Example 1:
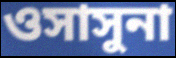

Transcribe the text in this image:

ওসাসুনা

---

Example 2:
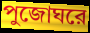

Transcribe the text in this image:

পুজোঘরে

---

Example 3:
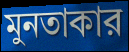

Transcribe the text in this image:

মুনতাকার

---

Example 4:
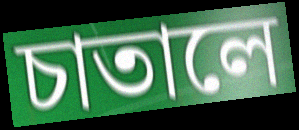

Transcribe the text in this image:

চাতালে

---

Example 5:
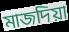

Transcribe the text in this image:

মাজদিয়া